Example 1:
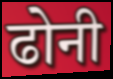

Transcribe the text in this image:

ढोनी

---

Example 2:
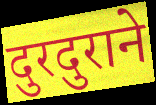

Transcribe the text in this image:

दुरदुराने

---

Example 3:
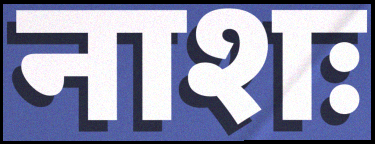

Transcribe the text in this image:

नाशः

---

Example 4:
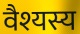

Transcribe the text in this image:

वैश्यस्य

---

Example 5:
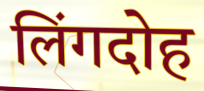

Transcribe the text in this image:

लिंगदोह